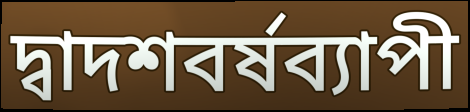
দ্বাদশবর্ষব্যাপী